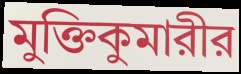
মুক্তিকুমারীর